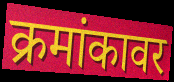
क्रमांकावर